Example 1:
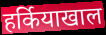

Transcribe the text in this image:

हर्कियाखाल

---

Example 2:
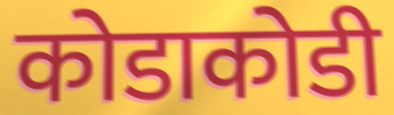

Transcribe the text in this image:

कोडाकोडी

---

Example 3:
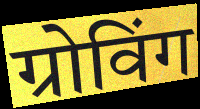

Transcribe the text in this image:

ग्रोविंग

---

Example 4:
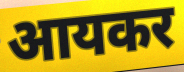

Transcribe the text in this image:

आयकर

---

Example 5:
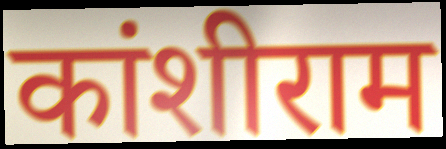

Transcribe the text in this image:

कांशीराम